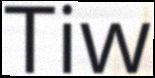
Tiw